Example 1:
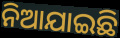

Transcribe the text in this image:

ନିଆଯାଇଛି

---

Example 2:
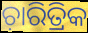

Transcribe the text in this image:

ଚ଼ାରିତ୍ରିକ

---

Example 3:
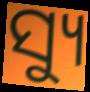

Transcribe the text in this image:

ସ୍ୟୁ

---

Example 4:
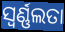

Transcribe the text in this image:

ସ୍ଵର୍ଣ୍ଣଲତା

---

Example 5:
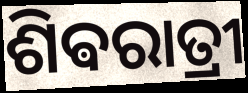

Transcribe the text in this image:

ଶିଵରାତ୍ରୀ